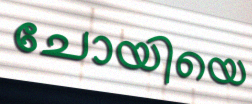
ചോയിയെ